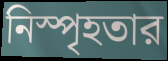
নিস্পৃহতার